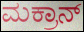
ಮಕ್ರಾನ್